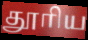
தூரிய